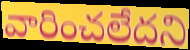
వారించలేదని